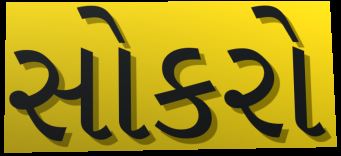
સોકરો